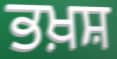
ਭਖ਼ਸ਼